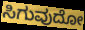
ಸಿಗುವುದೋ